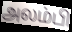
அலம்பி